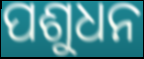
ପଶୁଧନ